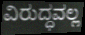
ವಿರುದ್ಧವಲ್ಲ